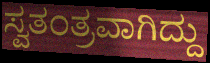
ಸ್ವತಂತ್ರವಾಗಿದ್ದು